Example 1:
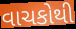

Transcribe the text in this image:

વાચકોથી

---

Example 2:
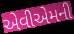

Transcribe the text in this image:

એવીએમની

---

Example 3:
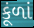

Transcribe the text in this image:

કૂંળાં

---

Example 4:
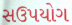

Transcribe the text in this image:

સઉપયોગ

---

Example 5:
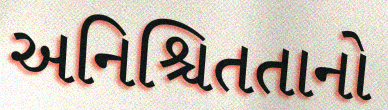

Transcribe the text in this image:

અનિશ્ચિતતાનો